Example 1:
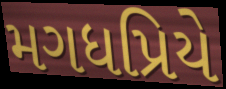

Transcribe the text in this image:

મગધપ્રિયે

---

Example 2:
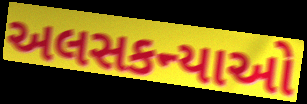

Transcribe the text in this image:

અલસકન્યાઓ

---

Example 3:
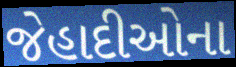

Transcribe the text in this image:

જેહાદીઓના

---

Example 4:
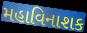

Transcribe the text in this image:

મહાવિનાશક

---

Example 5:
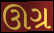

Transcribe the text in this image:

ઊગ્ર